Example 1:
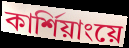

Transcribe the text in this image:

কার্শিয়াংয়ে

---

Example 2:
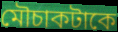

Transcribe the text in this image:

মৌচাকটাকে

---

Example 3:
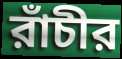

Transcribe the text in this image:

রাঁচীর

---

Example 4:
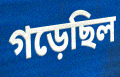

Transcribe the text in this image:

গড়েছিল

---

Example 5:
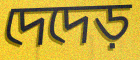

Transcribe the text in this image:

দেদেড়